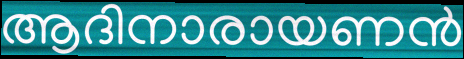
ആദിനാരായണൻ